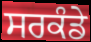
ਸਰਕੰਡੇ